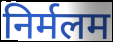
निर्मलम